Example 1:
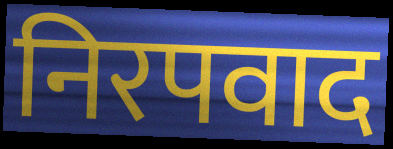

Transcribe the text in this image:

निरपवाद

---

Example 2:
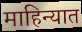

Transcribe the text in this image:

माहिन्यात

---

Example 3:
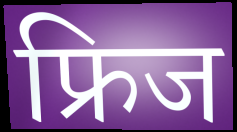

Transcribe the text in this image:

फ्रिज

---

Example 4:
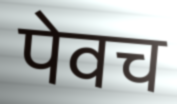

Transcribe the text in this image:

पेवच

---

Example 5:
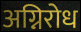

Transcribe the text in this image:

अग्निरोध